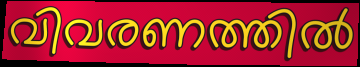
വിവരണത്തിൽ